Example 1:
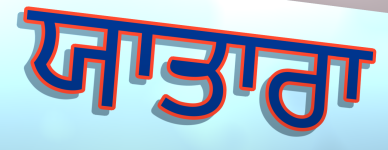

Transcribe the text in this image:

ਯਾਤਾਰਾ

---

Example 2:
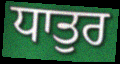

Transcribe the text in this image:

ਧਾਤੁਰ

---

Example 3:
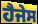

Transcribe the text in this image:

ਹੈਜੇਸ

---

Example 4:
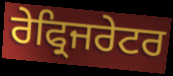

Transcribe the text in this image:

ਰੇਫ੍ਰਿਜਰੇਟਰ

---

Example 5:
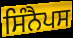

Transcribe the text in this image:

ਸਿੰਨੈਪਸ